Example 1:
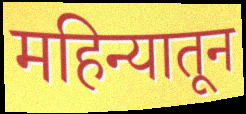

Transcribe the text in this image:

महिन्यातून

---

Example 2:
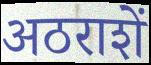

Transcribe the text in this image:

अठराशें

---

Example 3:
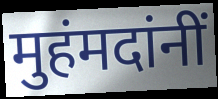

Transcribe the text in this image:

मुहंमदांनीं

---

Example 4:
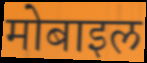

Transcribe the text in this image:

मोबाइल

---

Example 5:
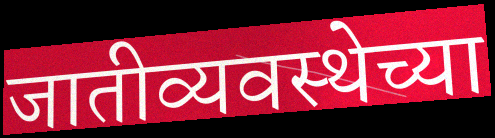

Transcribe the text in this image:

जातीव्यवस्थेच्या